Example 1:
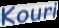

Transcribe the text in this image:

Kouri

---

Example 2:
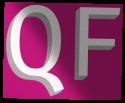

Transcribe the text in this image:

QF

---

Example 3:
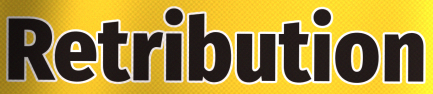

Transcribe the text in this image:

Retribution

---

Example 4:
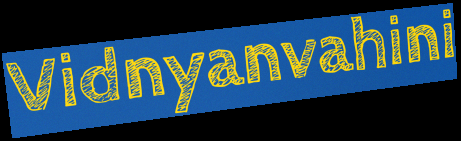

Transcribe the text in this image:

Vidnyanvahini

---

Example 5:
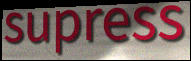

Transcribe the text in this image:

supress